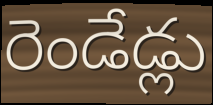
రెండేడ్లు